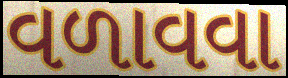
વળાવવા